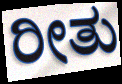
ರೀತು